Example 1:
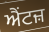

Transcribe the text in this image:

ਐਂਟਜ਼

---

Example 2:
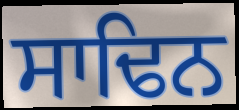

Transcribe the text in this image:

ਸਾਢਿਨ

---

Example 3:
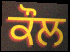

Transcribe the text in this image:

ਕੌਲ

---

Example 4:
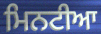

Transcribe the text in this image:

ਮਿਨਟੀਆ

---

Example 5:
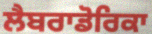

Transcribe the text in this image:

ਲੈਬਰਾਡੋਰਿਕਾ